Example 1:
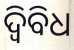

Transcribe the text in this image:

ଦ୍ୱିବିଧ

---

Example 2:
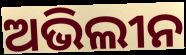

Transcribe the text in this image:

ଅଭିଲୀନ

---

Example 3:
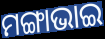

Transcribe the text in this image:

ମଙ୍ଗାଭାଇ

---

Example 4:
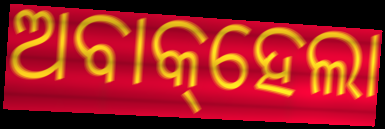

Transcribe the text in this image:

ଅବାକ୍‌ହେଲା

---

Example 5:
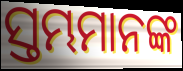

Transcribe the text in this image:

ସ୍ତମ୍ଭମାନଙ୍କ